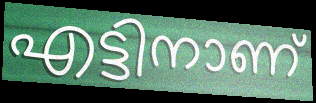
എട്ടിനാണ്